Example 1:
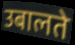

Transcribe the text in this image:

उबालते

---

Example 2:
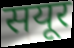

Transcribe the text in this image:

सयूर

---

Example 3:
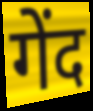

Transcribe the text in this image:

गेंद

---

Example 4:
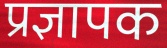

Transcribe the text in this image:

प्रज्ञापक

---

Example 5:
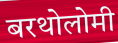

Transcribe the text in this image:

बरथोलोमी